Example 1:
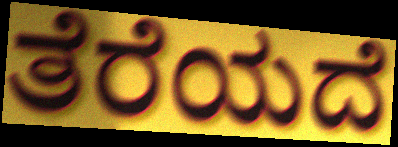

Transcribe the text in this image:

ತೆರೆಯದೆ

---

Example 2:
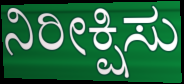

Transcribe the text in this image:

ನಿರೀಕ್ಷಿಸು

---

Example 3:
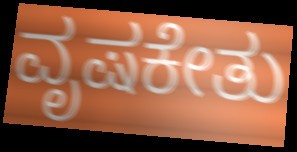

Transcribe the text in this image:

ವೃಷಕೇತು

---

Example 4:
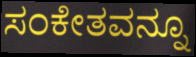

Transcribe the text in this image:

ಸಂಕೇತವನ್ನೂ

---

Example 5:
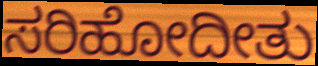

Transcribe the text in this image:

ಸರಿಹೋದೀತು